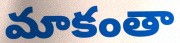
మాకంతా